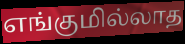
எங்குமில்லாத